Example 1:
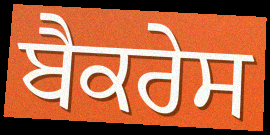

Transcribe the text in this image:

ਬੈਕਰੇਸ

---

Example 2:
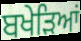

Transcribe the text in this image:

ਬਖੇੜਿਆਂ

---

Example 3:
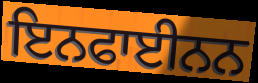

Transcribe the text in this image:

ਇਨਫਾਈਨਨ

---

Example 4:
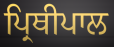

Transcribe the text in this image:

ਪ੍ਰਿਥੀਪਾਲ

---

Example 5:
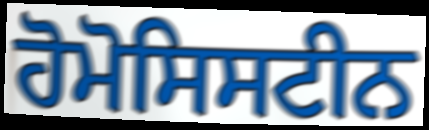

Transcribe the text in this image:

ਹੋਮੋਸਿਸਟੀਨ